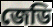
জেডি